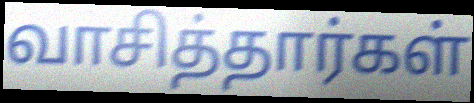
வாசித்தார்கள்